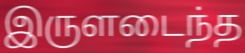
இருளடைந்த